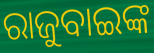
ରାଜୁବାଇଙ୍କ